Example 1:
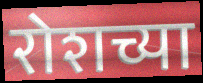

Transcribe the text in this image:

रोशच्या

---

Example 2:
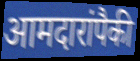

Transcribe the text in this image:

आमदारांपैकी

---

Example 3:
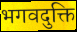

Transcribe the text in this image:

भगवदुक्ति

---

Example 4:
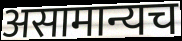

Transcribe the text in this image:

असामान्यच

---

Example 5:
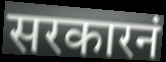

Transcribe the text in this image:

सरकारनं